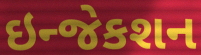
ઇન્જેકશન